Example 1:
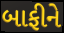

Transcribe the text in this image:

બાફીને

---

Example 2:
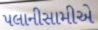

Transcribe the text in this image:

પલાનીસામીએ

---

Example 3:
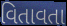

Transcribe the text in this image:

વિતાવતા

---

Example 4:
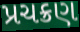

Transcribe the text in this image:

પ્રચક્રણ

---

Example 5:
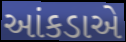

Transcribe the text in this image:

આંકડાએ